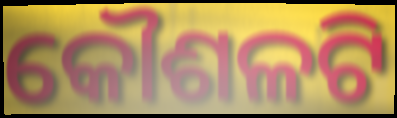
କୌଶଳଟି